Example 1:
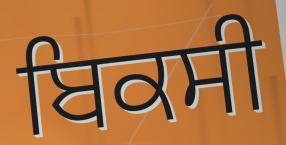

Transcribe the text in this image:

ਬਿਕਸੀ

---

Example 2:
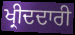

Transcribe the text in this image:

ਖ੍ਰੀਦਦਾਰੀ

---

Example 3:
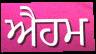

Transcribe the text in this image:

ਐਹਮ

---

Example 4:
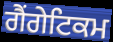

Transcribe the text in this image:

ਗੈਂਗੇਟਿਕਮ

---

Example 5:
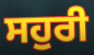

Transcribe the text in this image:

ਸਹੁਰੀ